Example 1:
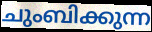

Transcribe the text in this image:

ചുംബിക്കുന്ന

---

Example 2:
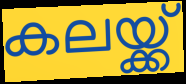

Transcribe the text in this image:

കലയ്ക്ക്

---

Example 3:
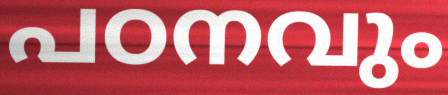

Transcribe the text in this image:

പഠനവും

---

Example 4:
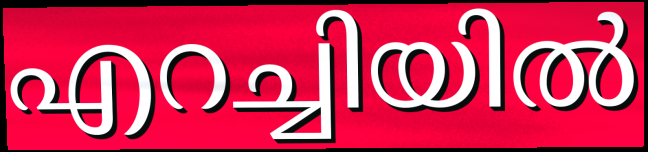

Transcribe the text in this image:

എറച്ചിയിൽ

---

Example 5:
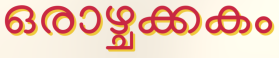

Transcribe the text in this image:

ഒരാഴ്ചക്കകം